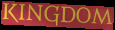
KINGDOM